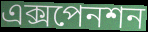
এক্সপেনশন